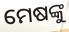
ମେଷଙ୍କୁ